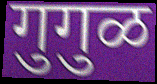
गुगुळ